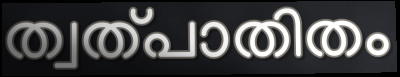
ത്വത്പാതിതം